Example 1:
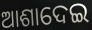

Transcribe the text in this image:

ଆଶାଦେଇ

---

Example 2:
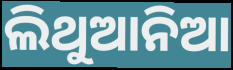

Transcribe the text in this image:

ଲିଥୁଆନିଆ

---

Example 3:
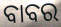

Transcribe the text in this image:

ବାବର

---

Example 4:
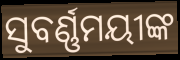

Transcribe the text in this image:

ସୁବର୍ଣ୍ଣମୟୀଙ୍କ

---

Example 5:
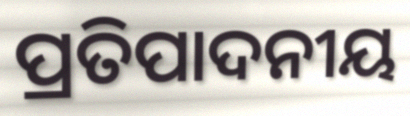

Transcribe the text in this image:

ପ୍ରତିପାଦନୀୟ